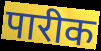
पारीक